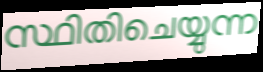
സ്ഥിതിചെയ്യുന്ന